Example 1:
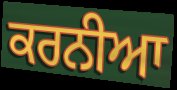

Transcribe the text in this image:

ਕਰਨੀਆ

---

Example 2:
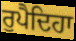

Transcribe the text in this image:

ਰੁਪੈਦਿਹਾ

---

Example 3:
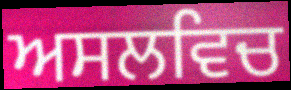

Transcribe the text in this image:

ਅਸਲਵਿਚ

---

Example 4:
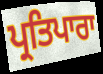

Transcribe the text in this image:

ਪ੍ਰਤਿਪਾਰਾ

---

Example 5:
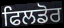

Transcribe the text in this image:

ਫਿਲਡੋਰ